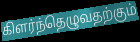
கிளர்ந்தெழுவதற்கும்